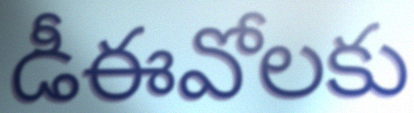
డీఈవోలకు